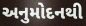
અનુમોદનથી